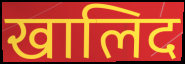
खालिद